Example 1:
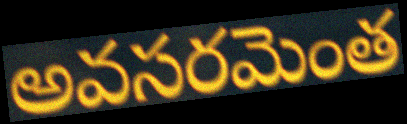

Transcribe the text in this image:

అవసరమెంత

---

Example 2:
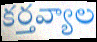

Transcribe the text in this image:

కర్తవ్యాల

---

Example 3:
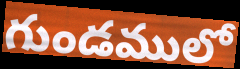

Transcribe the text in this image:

గుండములో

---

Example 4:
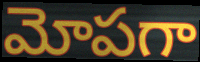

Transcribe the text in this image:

మోపగా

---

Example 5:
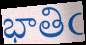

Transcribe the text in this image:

భాతిఁ